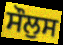
ਸੌਲੁਸ